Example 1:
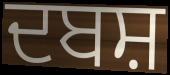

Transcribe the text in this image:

ਦਬਸ਼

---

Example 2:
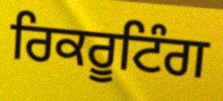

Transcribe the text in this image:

ਰਿਕਰੂਟਿੰਗ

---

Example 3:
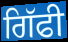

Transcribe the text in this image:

ਗਿੱਫੀ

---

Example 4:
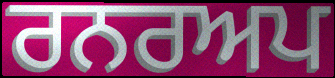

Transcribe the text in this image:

ਰਨਰਅਪ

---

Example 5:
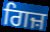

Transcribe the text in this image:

ਗਿਜ਼